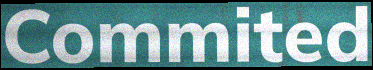
Commited